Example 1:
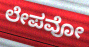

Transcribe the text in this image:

ಲೇಪವೋ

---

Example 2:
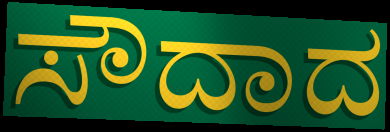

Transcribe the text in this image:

ಸೌದಾದ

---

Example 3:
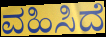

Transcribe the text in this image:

ವಹಿಸಿದೆ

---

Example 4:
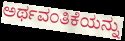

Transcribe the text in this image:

ಅರ್ಥವಂತಿಕೆಯನ್ನು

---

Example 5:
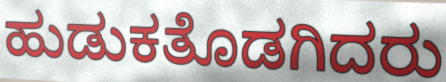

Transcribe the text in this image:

ಹುಡುಕತೊಡಗಿದರು